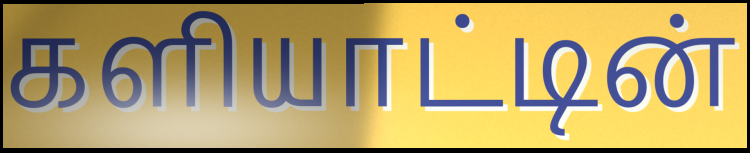
களியாட்டின்